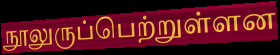
நூலுருப்பெற்றுள்ளன